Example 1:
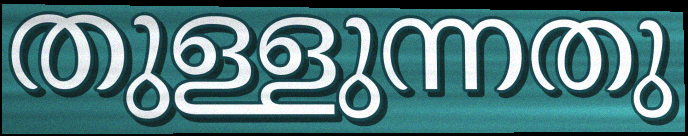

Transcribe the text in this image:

തുള്ളുന്നതു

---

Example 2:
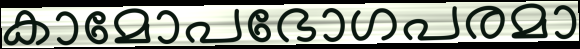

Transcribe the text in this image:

കാമോപഭോഗപരമാ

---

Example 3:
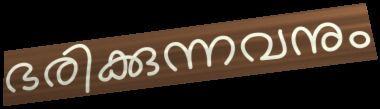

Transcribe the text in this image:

ഭരിക്കുന്നവനും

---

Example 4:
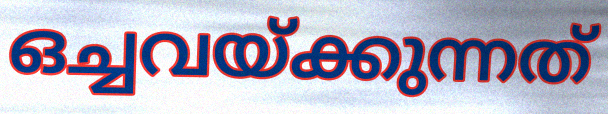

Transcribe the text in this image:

ഒച്ചവയ്ക്കുന്നത്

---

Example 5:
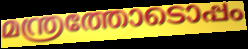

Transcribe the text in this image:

മന്ത്രത്തോടൊപ്പം